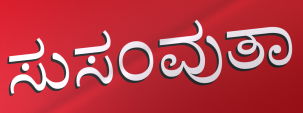
ಸುಸಂವುತಾ